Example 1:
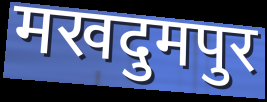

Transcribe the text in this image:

मखदुमपुर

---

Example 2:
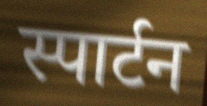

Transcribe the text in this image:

स्पार्टन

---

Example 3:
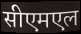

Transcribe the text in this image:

सीएमएल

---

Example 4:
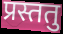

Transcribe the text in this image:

प्रस्ततु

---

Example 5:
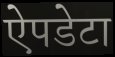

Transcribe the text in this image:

ऐपडेटा